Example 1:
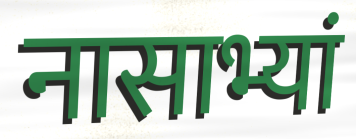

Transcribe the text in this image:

नासाभ्यां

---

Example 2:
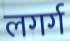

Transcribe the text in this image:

लगर्ग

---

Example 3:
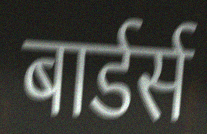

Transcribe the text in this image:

बार्डर्स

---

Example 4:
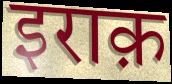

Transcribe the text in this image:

इराक़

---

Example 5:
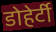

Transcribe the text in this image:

डोहेर्टी